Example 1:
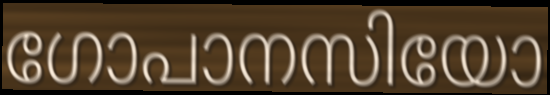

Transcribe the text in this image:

ഗോപാനസിയോ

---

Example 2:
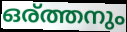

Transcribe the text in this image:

ഒര്ത്തനും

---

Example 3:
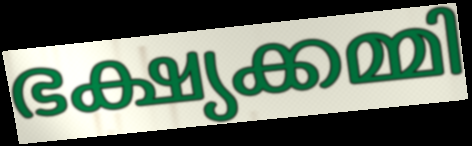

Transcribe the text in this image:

ഭക്ഷ്യക്കമ്മി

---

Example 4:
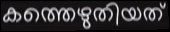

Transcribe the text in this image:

കത്തെഴുതിയത്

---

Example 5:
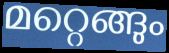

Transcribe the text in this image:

മറ്റെങ്ങും